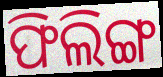
ଫିଲିଙ୍ଗ